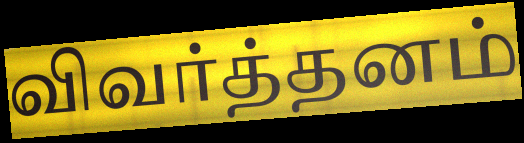
விவர்த்தனம்